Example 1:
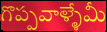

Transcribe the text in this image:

గొప్పవాళ్ళేమీ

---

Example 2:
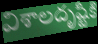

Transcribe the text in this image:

విశాలదృష్టికి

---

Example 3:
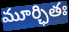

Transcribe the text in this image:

మూర్ఛితః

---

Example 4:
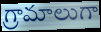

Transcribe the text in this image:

గ్రామాలుగా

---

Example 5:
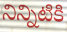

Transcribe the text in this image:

నిన్నిటికి